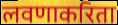
लवणाकरिता